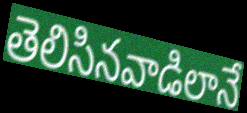
తెలిసినవాడిలానే